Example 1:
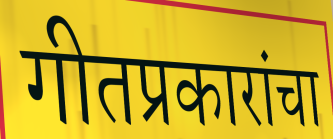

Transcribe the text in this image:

गीतप्रकारांचा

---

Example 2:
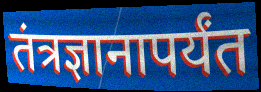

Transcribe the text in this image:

तंत्रज्ञानापर्यंत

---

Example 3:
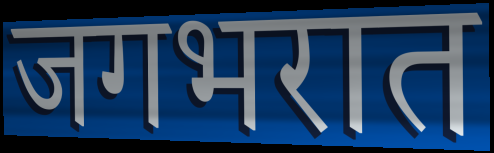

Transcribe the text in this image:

जगभरात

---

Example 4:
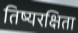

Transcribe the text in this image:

तिष्यरक्षिता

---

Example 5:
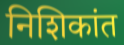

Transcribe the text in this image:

निशिकांत